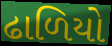
ઢાળિયો